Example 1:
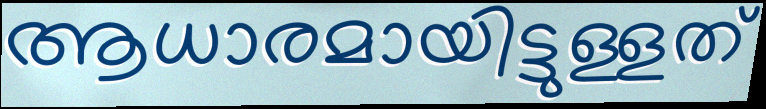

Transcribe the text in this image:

ആധാരമായിട്ടുള്ളത്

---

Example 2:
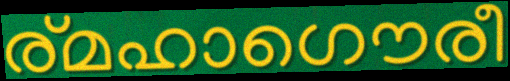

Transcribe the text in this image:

ര്മഹാഗൌരീ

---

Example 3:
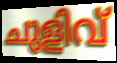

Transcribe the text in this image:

ചുളിവ്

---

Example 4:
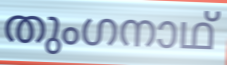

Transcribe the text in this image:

തുംഗനാഥ്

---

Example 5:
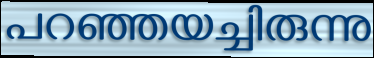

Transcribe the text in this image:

പറഞ്ഞയച്ചിരുന്നു